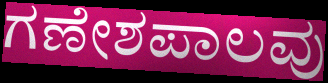
ಗಣೇಶಪಾಲವು